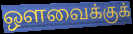
ஔவைக்குக்